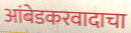
आंबेडकरवादाचा